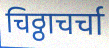
चिठ्ठाचर्चा